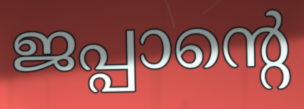
ജപ്പാന്റെ